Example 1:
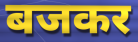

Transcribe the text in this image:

बजकर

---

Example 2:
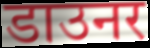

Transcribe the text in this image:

डाउनर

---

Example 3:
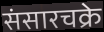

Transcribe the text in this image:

संसारचक्रे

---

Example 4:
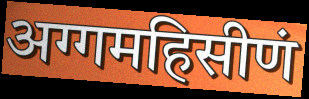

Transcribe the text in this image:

अग्गमहिसीणं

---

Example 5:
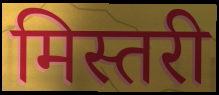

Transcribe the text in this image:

मिस्तरी